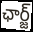
ఛార్జ్